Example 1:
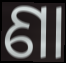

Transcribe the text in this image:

ଣା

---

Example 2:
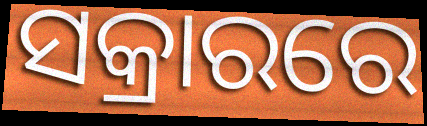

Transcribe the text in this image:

ସକ୍ରାରରେ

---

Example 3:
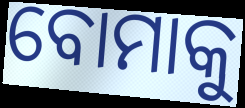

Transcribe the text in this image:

ବୋମାକୁ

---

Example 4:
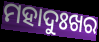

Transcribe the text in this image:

ମହାଦୁଃଖର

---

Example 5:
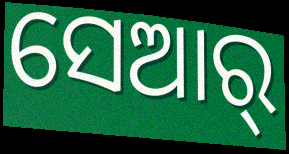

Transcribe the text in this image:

ସେଆର୍